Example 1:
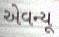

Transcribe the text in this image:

એવન્યૂ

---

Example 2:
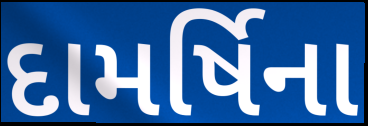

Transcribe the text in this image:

દામર્ષિના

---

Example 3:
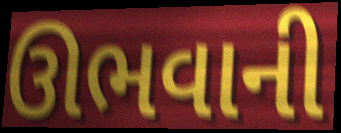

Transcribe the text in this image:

ઊભવાની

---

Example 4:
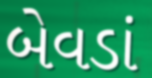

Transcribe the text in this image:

બેવડાં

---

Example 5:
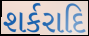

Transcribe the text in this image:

શર્કરાદિ